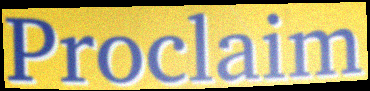
Proclaim